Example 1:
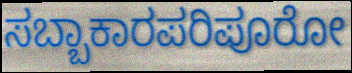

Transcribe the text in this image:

ಸಬ್ಬಾಕಾರಪರಿಪೂರೋ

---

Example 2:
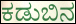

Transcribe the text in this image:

ಕಡುಬಿನ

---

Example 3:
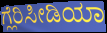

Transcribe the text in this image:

ಗ್ಲೆರಿಸೀಡಿಯಾ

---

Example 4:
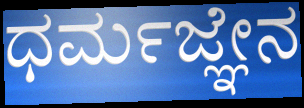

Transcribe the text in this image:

ಧರ್ಮಜ್ಞೇನ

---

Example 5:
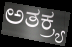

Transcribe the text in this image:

ಅತಕ್ರ್ಯ